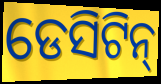
ଡେସିଟିନ୍